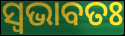
ସ୍ଵଭାବତଃ